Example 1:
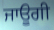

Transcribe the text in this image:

ਜਾਊਗੀ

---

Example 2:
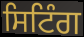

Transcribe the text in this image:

ਸਿਟਿੰਗ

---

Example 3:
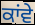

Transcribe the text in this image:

ਕਾਂਵੇ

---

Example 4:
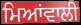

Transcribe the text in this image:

ਮਿਆਂਵਾਲੀ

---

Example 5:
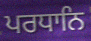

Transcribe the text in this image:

ਪਰਧਾਨਿ